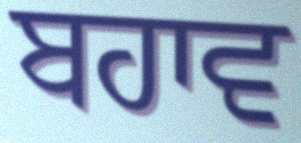
ਬਹਾਵ